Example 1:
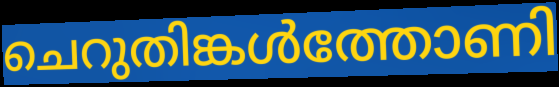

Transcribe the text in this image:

ചെറുതിങ്കൾത്തോണി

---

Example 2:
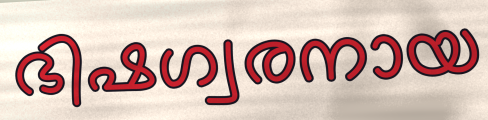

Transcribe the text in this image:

ഭിഷഗ്വരനായ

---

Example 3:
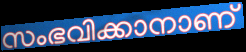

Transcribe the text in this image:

സംഭവിക്കാനാണ്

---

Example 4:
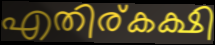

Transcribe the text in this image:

എതിര്കക്ഷി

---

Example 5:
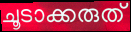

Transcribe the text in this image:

ചൂടാക്കരുത്